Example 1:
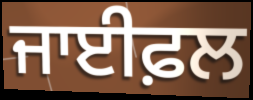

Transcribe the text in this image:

ਜਾਈਫ਼ਲ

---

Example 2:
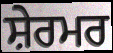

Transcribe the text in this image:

ਸ਼ੇਰਮਰ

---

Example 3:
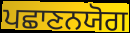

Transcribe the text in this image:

ਪਛਾਣਨਯੋਗ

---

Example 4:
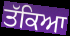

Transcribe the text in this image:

ਤੱਕਿਆ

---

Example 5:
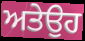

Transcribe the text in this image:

ਅਤੇਉਹ